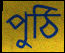
পুঠি